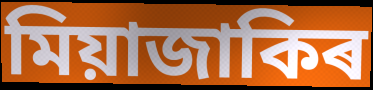
মিয়াজাকিৰ